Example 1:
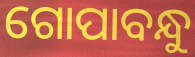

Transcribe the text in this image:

ଗୋପାବନ୍ଧୁ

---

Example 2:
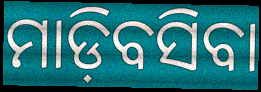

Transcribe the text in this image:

ମାଡ଼ିବସିବା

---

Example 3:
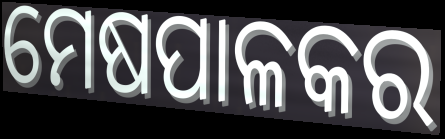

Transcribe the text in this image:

ମେଷପାଳକର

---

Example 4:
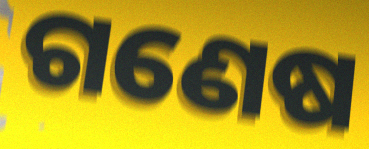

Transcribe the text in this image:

ଗଣେଷ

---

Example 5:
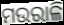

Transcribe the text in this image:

ମଉରାଳି